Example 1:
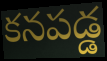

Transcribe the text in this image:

కనపడ్డ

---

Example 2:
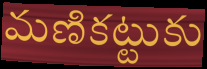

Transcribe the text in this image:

మణికట్టుకు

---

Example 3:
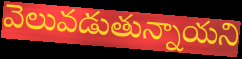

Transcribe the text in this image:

వెలువడుతున్నాయని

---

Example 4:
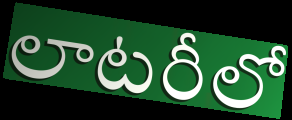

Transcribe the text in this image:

లాటరీలో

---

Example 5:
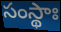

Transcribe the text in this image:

సంస్థాః